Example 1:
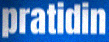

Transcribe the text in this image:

pratidin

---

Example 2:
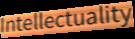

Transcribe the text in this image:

Intellectuality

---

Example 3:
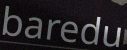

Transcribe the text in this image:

baredu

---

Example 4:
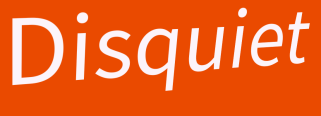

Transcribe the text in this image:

Disquiet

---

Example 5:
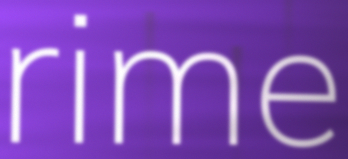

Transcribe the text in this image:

rime